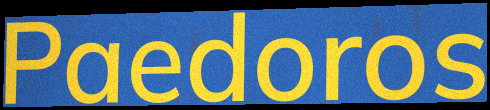
Paedoros